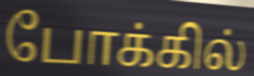
போக்கில்